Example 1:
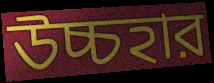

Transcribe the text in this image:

উচ্চহার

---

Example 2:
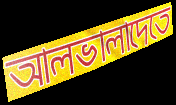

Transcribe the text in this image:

আলভালাদেতে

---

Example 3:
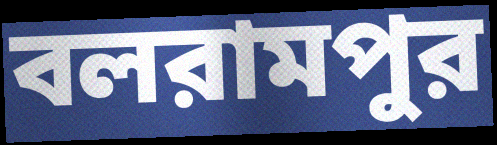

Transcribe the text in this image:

বলরামপুর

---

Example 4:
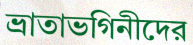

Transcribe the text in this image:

ভ্রাতাভগিনীদের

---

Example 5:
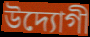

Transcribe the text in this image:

উদ্যোগী